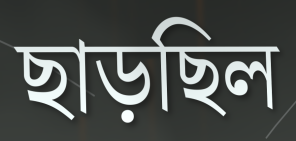
ছাড়ছিল